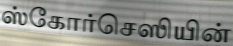
ஸ்கோர்செஸியின்